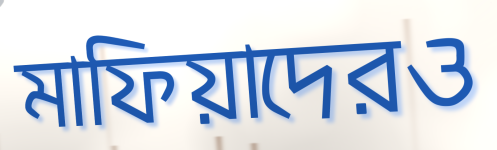
মাফিয়াদেরও